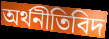
অৰ্থনীতিবিদ